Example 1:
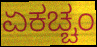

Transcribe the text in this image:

ಏಕಚ್ಚಂ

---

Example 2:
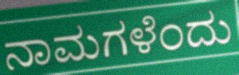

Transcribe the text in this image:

ನಾಮಗಳೆಂದು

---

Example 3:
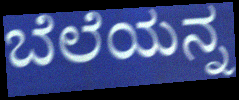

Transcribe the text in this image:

ಬೆಲೆಯನ್ನ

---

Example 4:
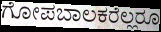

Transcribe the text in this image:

ಗೋಪಬಾಲಕರೆಲ್ಲರೂ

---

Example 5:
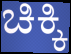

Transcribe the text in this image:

ಚಿಕ್ಕಿ